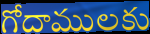
గోదాములకు